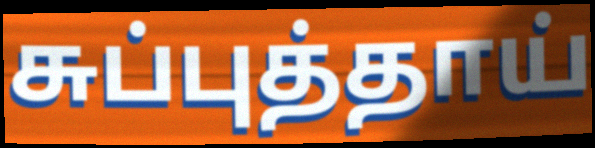
சுப்புத்தாய்